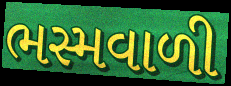
ભસ્મવાળી